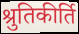
श्रुतिकीर्ति